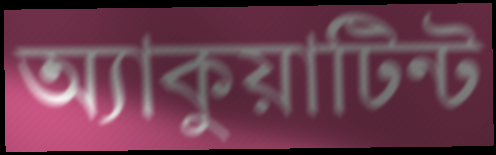
অ্যাকুয়াটিন্ট